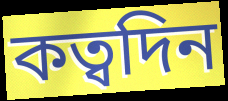
কত্বদিন